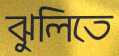
ঝুলিতে